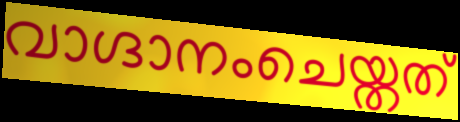
വാഗ്ദാനംചെയ്തത്